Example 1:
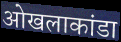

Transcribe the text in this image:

ओखलाकांडा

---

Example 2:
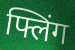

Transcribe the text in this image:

फ्लिंग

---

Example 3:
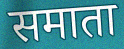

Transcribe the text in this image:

समाता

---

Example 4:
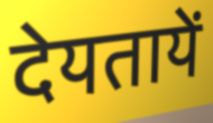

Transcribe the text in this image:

देयतायें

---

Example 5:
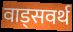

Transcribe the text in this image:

वाड्सवर्थ